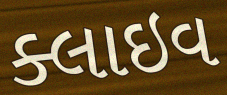
ક્લાઇવ